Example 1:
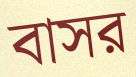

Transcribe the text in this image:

বাসর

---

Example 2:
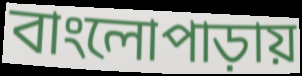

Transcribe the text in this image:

বাংলোপাড়ায়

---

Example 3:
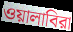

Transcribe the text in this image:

ওয়ালাবিরা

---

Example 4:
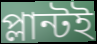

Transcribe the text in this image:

প্লান্টই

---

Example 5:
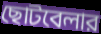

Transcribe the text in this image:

ছোটবেলার